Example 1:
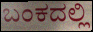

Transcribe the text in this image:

ಬಂಕದಲ್ಲಿ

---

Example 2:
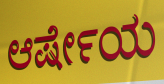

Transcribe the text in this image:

ಆರ್ಷೇಯ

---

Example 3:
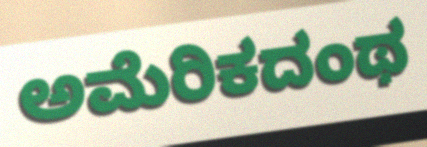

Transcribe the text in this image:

ಅಮೆರಿಕದಂಥ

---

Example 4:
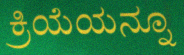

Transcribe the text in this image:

ಕ್ರಿಯೆಯನ್ನೂ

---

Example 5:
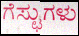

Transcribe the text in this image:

ಗೆಸ್ಟುಗಳು